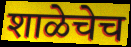
शाळेचेच